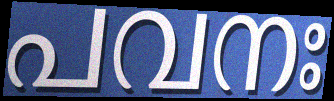
പവനഃ